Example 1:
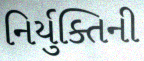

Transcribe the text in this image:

નિર્યુક્તિની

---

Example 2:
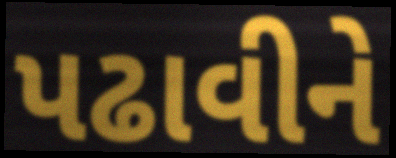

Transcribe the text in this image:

પઢાવીને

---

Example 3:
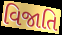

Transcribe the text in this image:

વિજાતિ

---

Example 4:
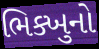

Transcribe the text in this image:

ભિક્ખુનો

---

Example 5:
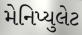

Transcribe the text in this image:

મેનિપ્યુલેટ